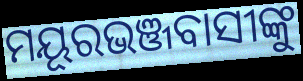
ମୟୂରଭଞ୍ଜବାସୀଙ୍କୁ